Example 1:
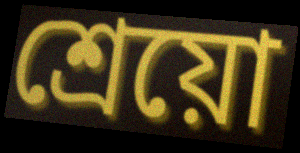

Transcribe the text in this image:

শ্রেয়ো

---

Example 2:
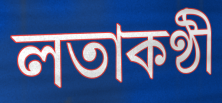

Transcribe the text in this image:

লতাকণ্ঠী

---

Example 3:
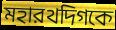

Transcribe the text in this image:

মহারথদিগকে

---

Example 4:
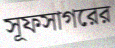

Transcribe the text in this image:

সূফসাগরের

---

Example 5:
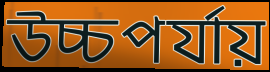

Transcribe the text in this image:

উচ্চপর্যায়